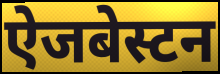
ऐजबेस्टन